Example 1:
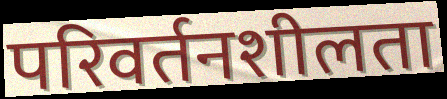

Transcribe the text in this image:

परिवर्तनशीलता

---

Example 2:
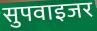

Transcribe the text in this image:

सुपवाइजर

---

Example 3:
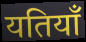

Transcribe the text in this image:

यतियाँ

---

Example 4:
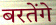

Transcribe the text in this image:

बरतेंगे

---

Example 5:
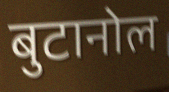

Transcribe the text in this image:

बुटानोल